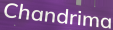
Chandrima